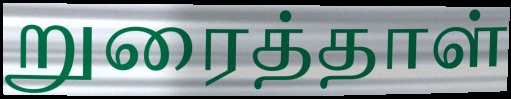
றுரைத்தாள்